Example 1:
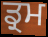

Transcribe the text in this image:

ਡ੍ਰਮ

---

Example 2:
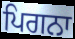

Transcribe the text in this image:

ਪਿਗਨਾ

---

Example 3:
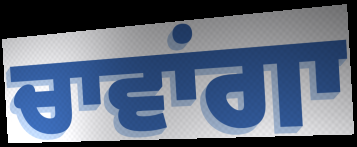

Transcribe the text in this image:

ਚਾਵਾਂਗਾ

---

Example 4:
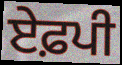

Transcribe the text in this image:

ਏਫ਼ਪੀ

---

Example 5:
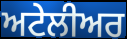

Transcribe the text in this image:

ਅਟੇਲੀਅਰ